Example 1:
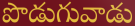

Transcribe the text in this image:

పొడుగువాడు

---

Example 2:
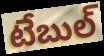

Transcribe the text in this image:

టేబుల్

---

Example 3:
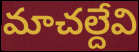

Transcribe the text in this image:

మాచల్దేవి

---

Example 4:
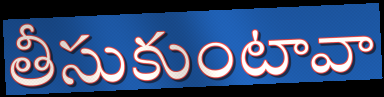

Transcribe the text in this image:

తీసుకుంటావా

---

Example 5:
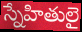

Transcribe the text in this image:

స్నేహితులై